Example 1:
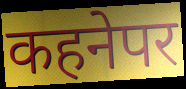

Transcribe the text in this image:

कहनेपर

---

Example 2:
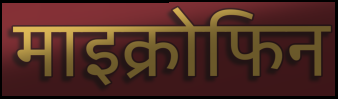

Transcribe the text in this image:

माइक्रोफिन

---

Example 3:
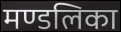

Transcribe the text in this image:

मण्डलिका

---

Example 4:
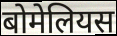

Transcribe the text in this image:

बोमेलियस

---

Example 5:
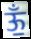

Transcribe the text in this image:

ऊँ॒